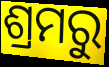
ଶ୍ରମରୁ